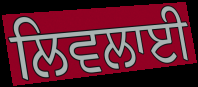
ਲਿਵਲਾਈ